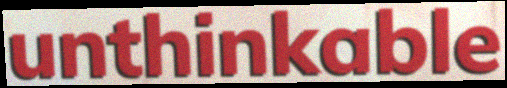
unthinkable